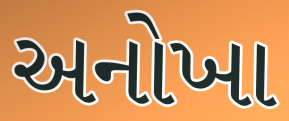
અનોખા